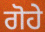
ਗੋਹੇ